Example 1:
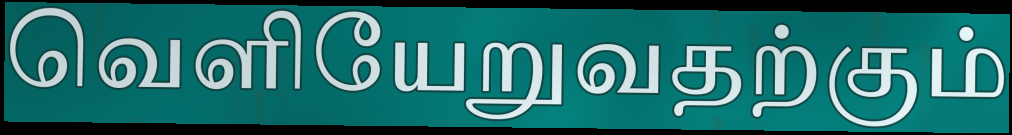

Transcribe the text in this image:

வெளியேறுவதற்கும்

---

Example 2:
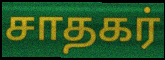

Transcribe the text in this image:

சாதகர்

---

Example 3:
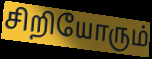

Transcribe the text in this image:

சிறியோரும்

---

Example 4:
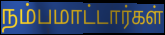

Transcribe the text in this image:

நம்பமாட்டார்கள்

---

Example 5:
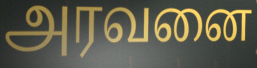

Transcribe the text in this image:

அரவனை